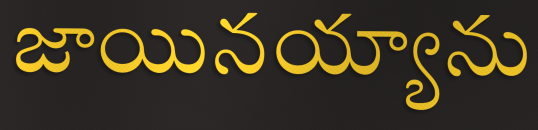
జాయినయ్యాను